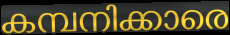
കമ്പനിക്കാരെ